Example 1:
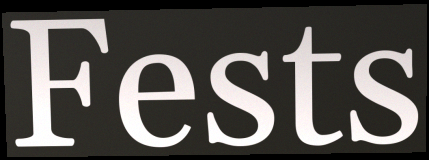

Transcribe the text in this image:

Fests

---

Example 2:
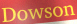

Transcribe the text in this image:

Dowson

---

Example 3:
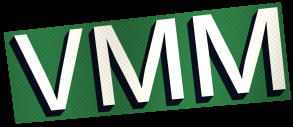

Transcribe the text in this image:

VMM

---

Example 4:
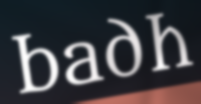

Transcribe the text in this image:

badh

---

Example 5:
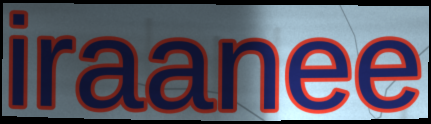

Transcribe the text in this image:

iraanee